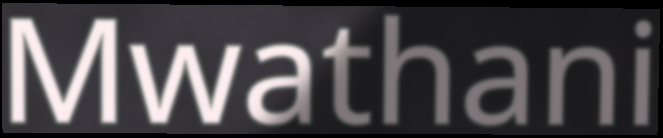
Mwathani